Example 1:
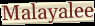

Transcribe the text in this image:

Malayalee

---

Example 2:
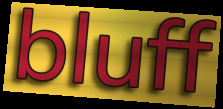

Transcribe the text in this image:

bluff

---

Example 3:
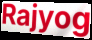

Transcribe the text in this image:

Rajyog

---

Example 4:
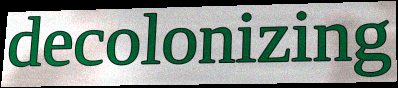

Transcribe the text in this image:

decolonizing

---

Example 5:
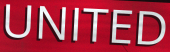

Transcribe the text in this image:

UNITED